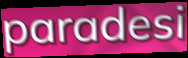
paradesi